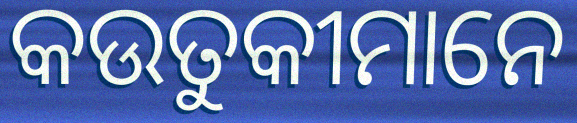
କଉତୁକୀମାନେ